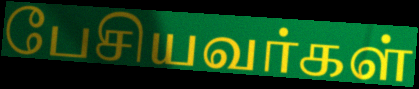
பேசியவர்கள்